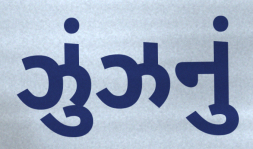
ઝુંઝનું